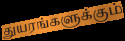
துயரங்களுக்கும்